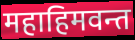
महाहिमवन्त